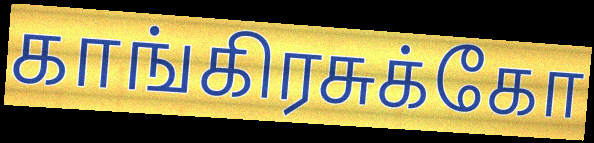
காங்கிரசுக்கோ